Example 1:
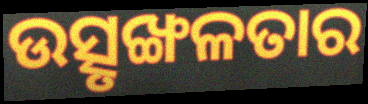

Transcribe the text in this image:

ଉତ୍ସୃଙ୍ଖଳତାର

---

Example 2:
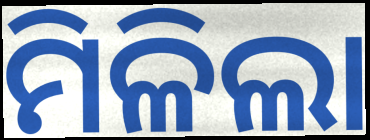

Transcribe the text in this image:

ମିଳିଲା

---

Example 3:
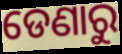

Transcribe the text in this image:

ଡେଣାରୁ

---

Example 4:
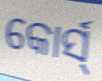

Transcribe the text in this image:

କୋର୍ସ୍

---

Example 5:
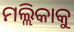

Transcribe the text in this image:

ମଲ୍ଲିକାକୁ